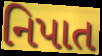
નિપાત